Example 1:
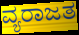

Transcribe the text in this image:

ವ್ಯರಾಜತ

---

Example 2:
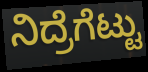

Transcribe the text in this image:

ನಿದ್ರೆಗೆಟ್ಟು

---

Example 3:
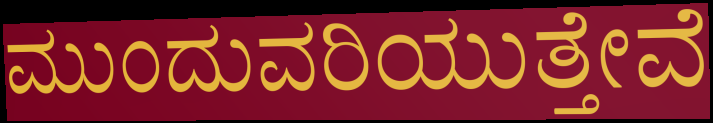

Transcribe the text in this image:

ಮುಂದುವರಿಯುತ್ತೇವೆ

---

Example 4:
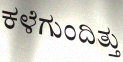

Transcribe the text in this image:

ಕಳೆಗುಂದಿತ್ತು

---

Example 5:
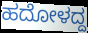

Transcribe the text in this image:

ಹದೋಳದ್ದ